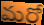
మరో